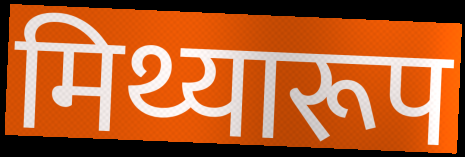
मिथ्यारूप